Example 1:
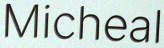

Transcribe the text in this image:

Micheal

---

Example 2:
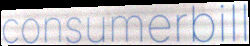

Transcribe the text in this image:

consumerbill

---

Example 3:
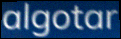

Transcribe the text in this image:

algotar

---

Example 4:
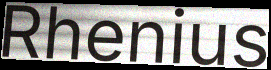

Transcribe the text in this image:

Rhenius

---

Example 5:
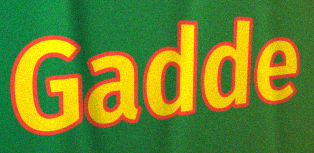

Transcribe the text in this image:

Gadde